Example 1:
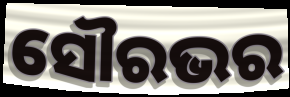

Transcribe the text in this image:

ସୌରଭର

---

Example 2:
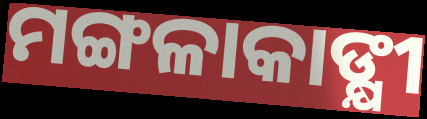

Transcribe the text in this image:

ମଙ୍ଗଳାକାଙ୍କ୍ଷୀ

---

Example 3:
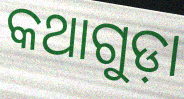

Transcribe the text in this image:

କଥାଗୁଡ଼ା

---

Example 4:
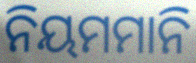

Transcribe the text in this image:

ନିୟମମାନି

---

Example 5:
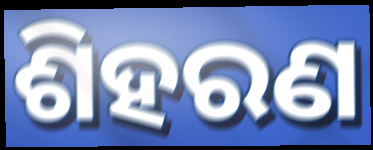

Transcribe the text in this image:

ଶିହରଣ